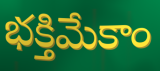
భక్తిమేకాం